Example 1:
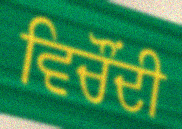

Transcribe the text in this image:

ਵਿਚੌਂਦੀ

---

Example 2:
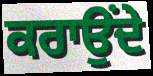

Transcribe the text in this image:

ਕਰਾਉੰਦੇ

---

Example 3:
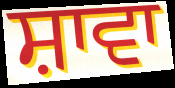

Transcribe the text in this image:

ਸ਼ਾਵਾ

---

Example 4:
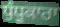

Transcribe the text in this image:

ਧੁੰਧੂਕਾਰਾ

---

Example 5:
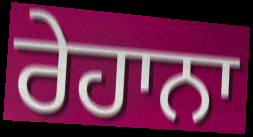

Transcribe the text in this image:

ਰੇਹਾਨਾ